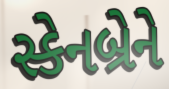
સ્કેનબ્રેને